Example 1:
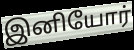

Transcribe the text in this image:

இனியோர்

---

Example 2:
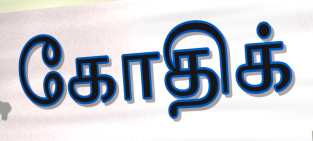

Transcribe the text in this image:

கோதிக்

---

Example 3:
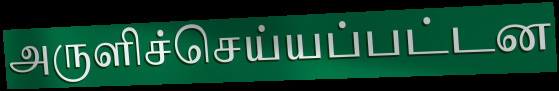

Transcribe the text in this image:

அருளிச்செய்யப்பட்டன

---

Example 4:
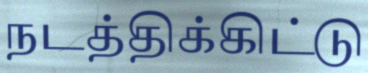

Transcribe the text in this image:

நடத்திக்கிட்டு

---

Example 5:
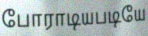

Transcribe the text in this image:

போராடியபடியே